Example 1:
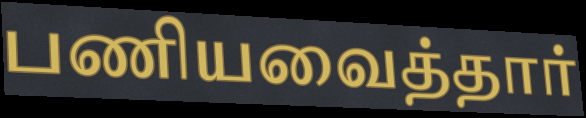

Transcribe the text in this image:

பணியவைத்தார்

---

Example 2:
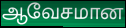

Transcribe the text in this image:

ஆவேசமான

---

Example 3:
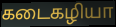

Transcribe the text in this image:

கடைகழியா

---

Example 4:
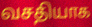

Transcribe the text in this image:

வசதியாக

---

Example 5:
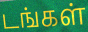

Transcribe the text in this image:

டங்கள்